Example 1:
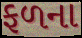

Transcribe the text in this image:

ફળના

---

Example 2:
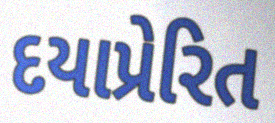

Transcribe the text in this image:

દયાપ્રેરિત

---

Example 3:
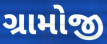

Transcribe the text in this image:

ગ્રામોજી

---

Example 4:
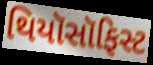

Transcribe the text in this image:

થિયૉસૉફિસ્ટ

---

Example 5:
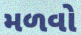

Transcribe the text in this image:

મળવો